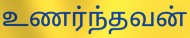
உணர்ந்தவன்